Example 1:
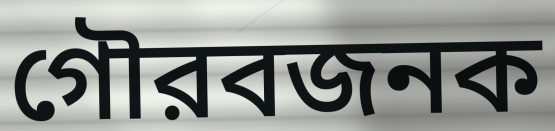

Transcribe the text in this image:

গৌরবজনক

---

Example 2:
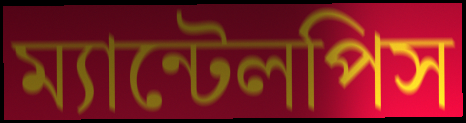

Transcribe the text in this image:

ম্যান্টেলপিস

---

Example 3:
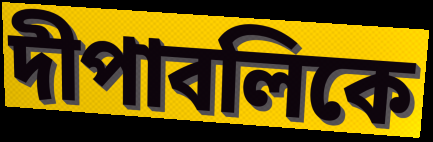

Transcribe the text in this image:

দীপাবলিকে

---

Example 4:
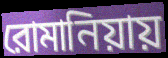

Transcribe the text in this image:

রোমানিয়ায়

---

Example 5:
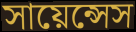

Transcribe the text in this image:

সায়েন্সেস